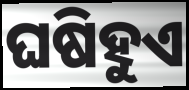
ଘଷିହୁଏ